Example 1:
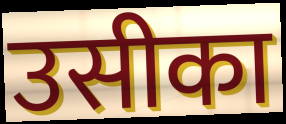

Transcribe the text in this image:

उसीका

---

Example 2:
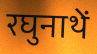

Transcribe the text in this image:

रघुनाथें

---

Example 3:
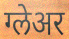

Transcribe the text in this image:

ग्लेअर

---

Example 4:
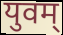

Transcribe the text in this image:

युवम्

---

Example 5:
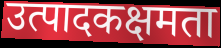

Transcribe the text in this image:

उत्पादकक्षमता